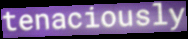
tenaciously